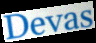
Devas